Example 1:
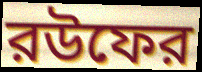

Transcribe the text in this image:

রউফের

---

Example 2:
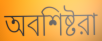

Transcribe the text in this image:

অবশিষ্টরা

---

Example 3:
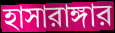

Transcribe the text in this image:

হাসারাঙ্গার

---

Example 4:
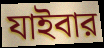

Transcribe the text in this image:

যাইবার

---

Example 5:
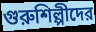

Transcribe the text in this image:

গুরুশিল্পীদের